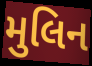
મુલિન